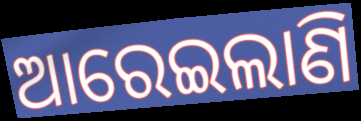
ଆରେଇଲାଣି